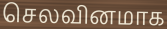
செலவினமாக